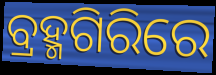
ବ୍ରହ୍ମଗିରିରେ